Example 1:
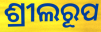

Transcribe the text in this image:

ଶ୍ରୀଲରୂପ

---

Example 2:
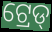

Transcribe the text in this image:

ଟ୍ରେଡ୍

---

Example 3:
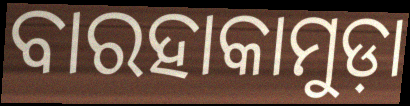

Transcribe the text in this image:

ବାରହାକାମୁଡ଼ା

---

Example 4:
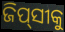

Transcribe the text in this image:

ଜିପ୍‌ସୀକୁ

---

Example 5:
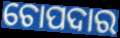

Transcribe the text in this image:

ଚୋପଦାର